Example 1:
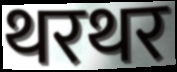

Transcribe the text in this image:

थरथर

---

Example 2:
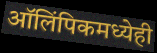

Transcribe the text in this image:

ऑलिंपिकमध्येही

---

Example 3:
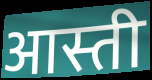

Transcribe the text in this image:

आस्ती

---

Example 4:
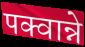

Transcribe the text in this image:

पक्वान्ने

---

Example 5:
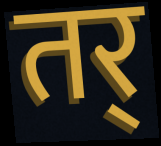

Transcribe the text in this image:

तर्